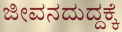
ಜೀವನದುದ್ದಕ್ಕೆ